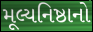
મૂલ્યનિષ્ઠાનો